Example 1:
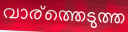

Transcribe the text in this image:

വാര്ത്തെടുത്ത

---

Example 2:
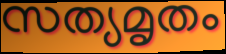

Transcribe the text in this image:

സത്യമൃതം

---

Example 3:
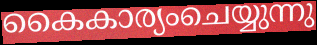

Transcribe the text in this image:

കൈകാര്യംചെയ്യുന്നു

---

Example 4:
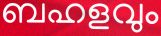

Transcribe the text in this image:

ബഹളവും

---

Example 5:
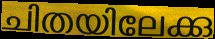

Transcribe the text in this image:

ചിതയിലേക്കു